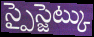
స్పైస్జెట్కు